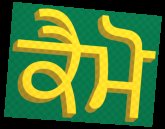
ਕੈਮੋ